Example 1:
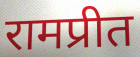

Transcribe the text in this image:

रामप्रीत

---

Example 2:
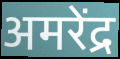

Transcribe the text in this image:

अमरेंद्र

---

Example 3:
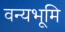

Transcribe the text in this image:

वन्यभूमि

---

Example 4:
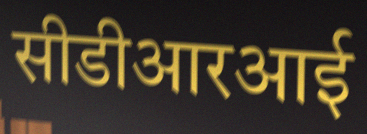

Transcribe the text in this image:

सीडीआरआई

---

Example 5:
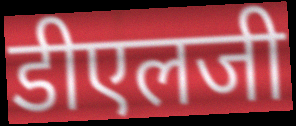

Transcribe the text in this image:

डीएलजी